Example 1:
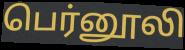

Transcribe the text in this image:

பெர்னூலி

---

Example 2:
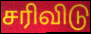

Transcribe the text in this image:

சரிவிடு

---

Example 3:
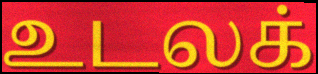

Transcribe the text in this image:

உடலக்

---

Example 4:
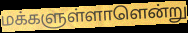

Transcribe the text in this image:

மக்களுள்ளாளென்று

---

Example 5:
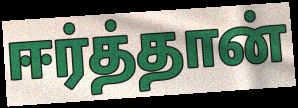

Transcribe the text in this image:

ஈர்த்தான்